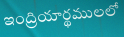
ఇంద్రియార్థములలో